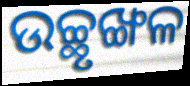
ଉଚ୍ଛୃଙ୍ଖଳ